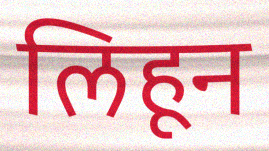
लिहून